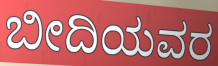
ಬೀದಿಯವರ